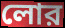
লোর